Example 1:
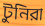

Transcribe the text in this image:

টুনিরা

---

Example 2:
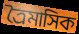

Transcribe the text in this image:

ত্রৈমাসিক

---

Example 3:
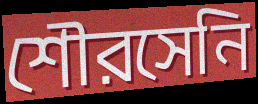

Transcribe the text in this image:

শৌরসেনি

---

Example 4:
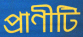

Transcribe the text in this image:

প্রাণীটি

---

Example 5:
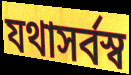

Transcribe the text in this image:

যথাসর্বস্ব